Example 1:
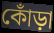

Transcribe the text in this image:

কোঁড়া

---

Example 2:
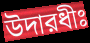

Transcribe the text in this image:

উদারধীঃ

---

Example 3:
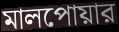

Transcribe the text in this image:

মালপোয়ার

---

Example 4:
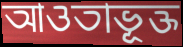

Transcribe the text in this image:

আওতাভূক্ত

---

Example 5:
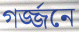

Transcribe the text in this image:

গর্জ্জনে